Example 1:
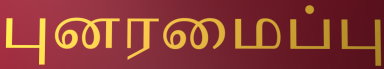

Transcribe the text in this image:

புனரமைப்பு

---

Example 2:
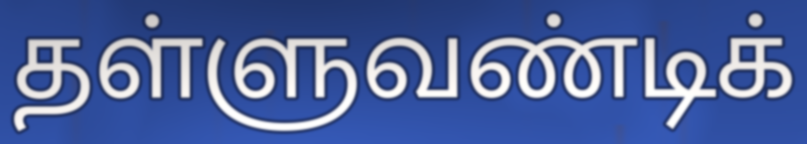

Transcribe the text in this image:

தள்ளுவண்டிக்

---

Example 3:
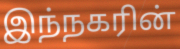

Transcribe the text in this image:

இந்நகரின்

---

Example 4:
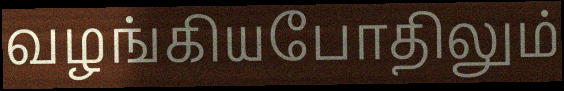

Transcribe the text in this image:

வழங்கியபோதிலும்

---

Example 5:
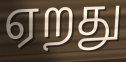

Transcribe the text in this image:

ஏறது